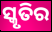
ସ୍କୃତିର